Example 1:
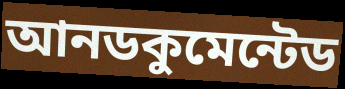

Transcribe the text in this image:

আনডকুমেন্টেড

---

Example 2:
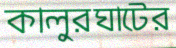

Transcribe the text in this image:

কালুরঘাটের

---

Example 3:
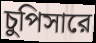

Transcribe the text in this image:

চুপিসারে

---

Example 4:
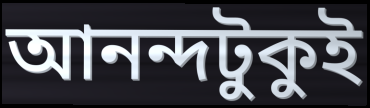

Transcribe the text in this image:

আনন্দটুকুই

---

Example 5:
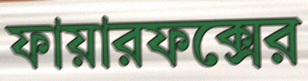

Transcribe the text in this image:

ফায়ারফক্সের